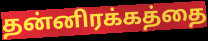
தன்னிரக்கத்தை